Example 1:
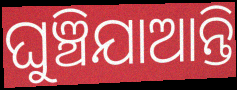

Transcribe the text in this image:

ଘୁଞ୍ଚିଯାଆନ୍ତି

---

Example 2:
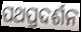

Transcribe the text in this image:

ପଥପ୍ରଦର୍ଶନ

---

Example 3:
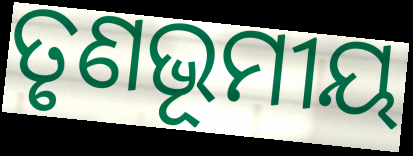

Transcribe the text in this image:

ତୃଣଭୂମୀୟ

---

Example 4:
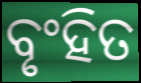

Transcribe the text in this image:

ବୃଂହିତ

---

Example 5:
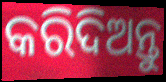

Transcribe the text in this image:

କରିଦିଅନ୍ତୁ